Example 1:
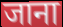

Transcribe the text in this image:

जाना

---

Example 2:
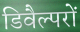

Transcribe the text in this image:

डिवैल्परों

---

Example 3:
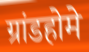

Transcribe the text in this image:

ग्रांडहोमे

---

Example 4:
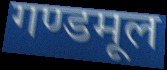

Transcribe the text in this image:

गण्डमूल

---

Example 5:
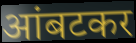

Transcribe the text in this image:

आंबटकर